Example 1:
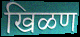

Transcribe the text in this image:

खिळण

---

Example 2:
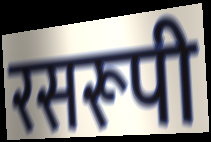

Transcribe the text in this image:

रसरूपी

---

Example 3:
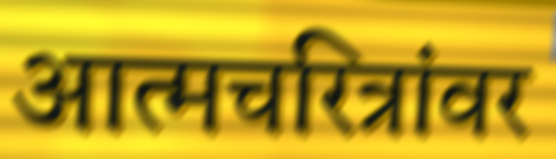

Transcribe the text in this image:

आत्मचरित्रांवर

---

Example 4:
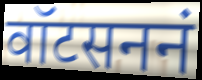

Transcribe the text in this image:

वॉटसननं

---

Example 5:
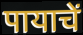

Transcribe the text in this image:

पायाचें